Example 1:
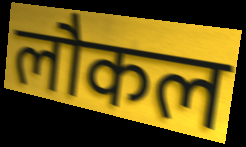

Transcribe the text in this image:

लौकल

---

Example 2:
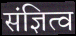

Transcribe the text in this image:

संज्ञित्व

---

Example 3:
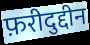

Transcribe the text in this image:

फ़रीदुद्दीन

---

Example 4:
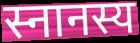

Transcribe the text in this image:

स्नानस्य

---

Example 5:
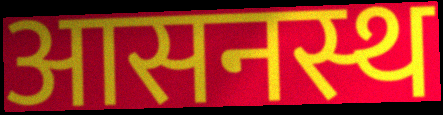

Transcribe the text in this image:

आसनस्थ